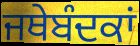
ਜਥੇਬੰਦਕਾਂ